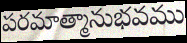
పరమాత్మానుభవము